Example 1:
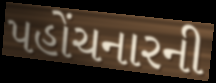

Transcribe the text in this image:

પહોંચનારની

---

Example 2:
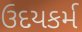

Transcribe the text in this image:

ઉદયકર્મ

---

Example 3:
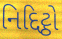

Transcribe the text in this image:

નિદ્દિટ્ઠો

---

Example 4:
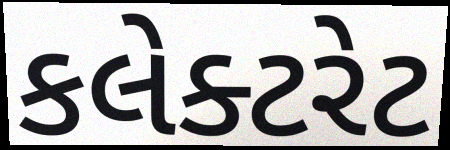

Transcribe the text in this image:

કલેક્ટરેટ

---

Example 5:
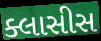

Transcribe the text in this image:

ક્લાસીસ